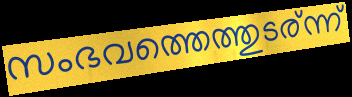
സംഭവത്തെത്തുടര്ന്ന്